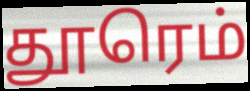
தூரெம்